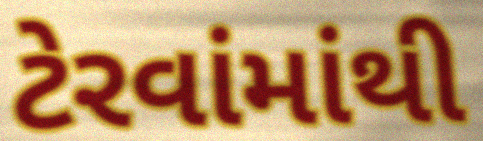
ટેરવાંમાંથી